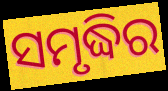
ସମୃଦ୍ଧିର